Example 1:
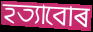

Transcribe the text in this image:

হত্যাবোৰ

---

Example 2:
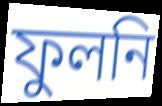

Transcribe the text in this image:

ফুলনি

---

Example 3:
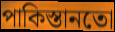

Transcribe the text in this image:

পাকিস্তানতো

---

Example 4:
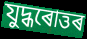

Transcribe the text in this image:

যুদ্ধৰোত্তৰ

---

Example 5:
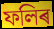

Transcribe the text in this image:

ফলিৰ